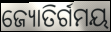
ଜ୍ୟୋତିର୍ଗମୟ